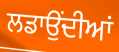
ਲਡਾਉਂਦੀਆਂ